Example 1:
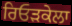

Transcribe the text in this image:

ਰਿਓੜਕੇਲਾ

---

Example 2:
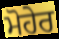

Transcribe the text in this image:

ਮੋਹੇਰ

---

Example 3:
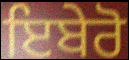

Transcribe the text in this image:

ਇਬੇਰੋ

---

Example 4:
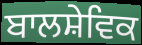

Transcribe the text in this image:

ਬਾਲਸ਼ੇਵਿਕ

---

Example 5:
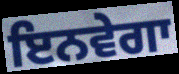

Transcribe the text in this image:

ਇਨਵੇਗਾ